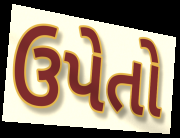
ઉપેતો